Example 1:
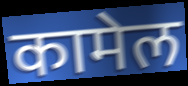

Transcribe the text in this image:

कामेल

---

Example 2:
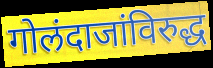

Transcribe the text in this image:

गोलंदाजांविरुद्ध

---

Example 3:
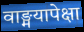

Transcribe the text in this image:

वाङ्मयापेक्षा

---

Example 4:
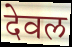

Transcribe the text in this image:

देवल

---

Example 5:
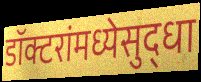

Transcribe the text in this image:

डॉक्टरांमध्येसुद्धा